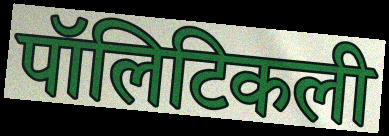
पॉलिटिकली